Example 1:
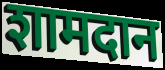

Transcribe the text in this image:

शामदान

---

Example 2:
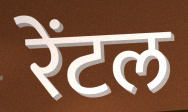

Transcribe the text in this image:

रेंटल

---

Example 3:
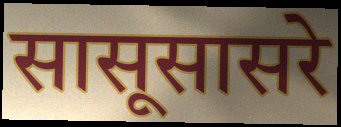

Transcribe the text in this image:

सासूसासरे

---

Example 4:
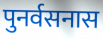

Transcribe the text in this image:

पुनर्वसनास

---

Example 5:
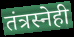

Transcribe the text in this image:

तंत्रस्नेही